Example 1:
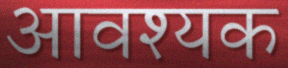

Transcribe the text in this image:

आवश्यक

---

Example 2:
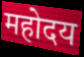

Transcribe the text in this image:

महोदय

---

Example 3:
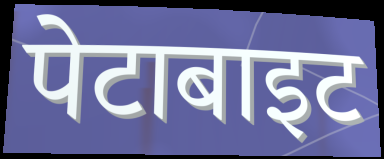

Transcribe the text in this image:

पेटाबाइट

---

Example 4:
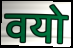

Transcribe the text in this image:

वयो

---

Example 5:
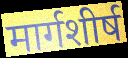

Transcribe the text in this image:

मार्गशीर्ष